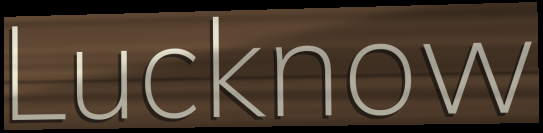
Lucknow